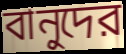
বানুদের